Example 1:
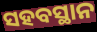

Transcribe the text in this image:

ସହବସ୍ଥାନ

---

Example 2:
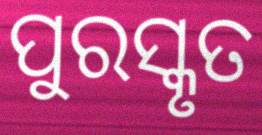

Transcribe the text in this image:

ପୁରସ୍କୃତ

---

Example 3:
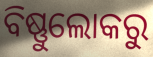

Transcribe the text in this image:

ବିଷ୍ଣୁଲୋକରୁ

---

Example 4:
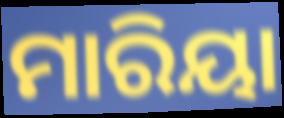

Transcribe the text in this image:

ମାରିୟା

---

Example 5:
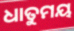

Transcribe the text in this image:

ଧାତୁମୟ